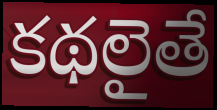
కథలైతే